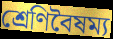
শ্রেণিবৈষম্য